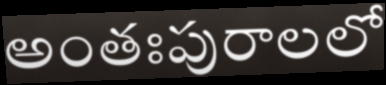
అంతఃపురాలలో